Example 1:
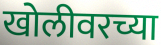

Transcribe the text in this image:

खोलीवरच्या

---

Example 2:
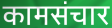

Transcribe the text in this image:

कामसंचार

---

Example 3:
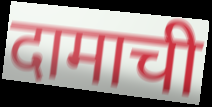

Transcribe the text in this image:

दामाची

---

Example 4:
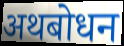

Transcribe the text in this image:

अथबोधन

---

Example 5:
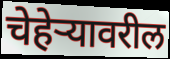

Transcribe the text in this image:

चेहेऱ्यावरील